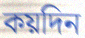
কয়দিন